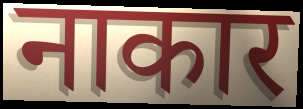
नाकार